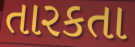
તારકતા